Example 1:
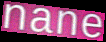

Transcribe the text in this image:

nane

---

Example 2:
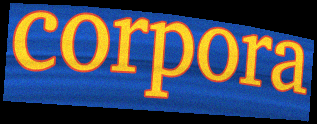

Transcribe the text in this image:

corpora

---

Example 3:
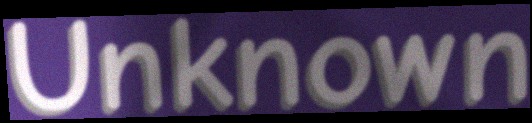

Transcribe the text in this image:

Unknown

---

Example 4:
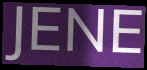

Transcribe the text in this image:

JENE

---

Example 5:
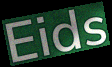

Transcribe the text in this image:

Eids